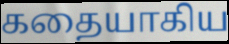
கதையாகிய